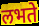
लभते